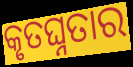
କୃତଘ୍ନତାର